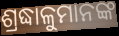
ଶ୍ରଦ୍ଧାଳୁମାନଙ୍କ